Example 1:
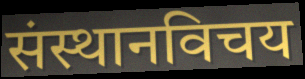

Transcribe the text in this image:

संस्थानविचय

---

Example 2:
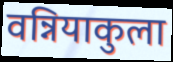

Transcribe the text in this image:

वन्नियाकुला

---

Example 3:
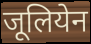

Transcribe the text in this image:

जूलियेन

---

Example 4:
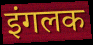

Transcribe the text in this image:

इंगलक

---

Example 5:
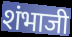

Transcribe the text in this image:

शंभाजी